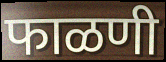
फाळणी